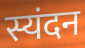
स्यंदन